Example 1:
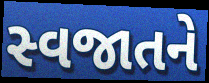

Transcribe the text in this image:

સ્વજાતને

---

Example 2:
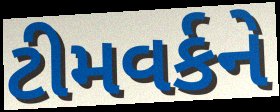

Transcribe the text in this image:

ટીમવર્કને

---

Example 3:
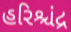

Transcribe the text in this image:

હરિશ્ચંદ્ર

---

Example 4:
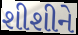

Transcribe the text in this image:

શીશીને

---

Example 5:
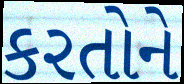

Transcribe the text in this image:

કરતોને